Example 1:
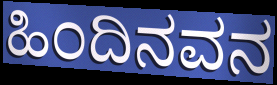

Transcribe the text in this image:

ಹಿಂದಿನವನ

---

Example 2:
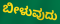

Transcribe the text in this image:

ಬೀಳುವುದು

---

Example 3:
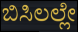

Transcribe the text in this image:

ಬಿಸಿಲಲ್ಲೇ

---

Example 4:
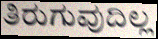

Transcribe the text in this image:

ತಿರುಗುವುದಿಲ್ಲ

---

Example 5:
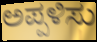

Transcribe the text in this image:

ಅಪ್ಪಳಿಸು